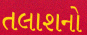
તલાશનો